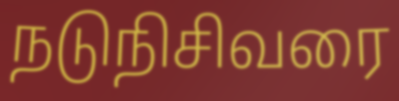
நடுநிசிவரை